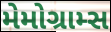
મેમોગ્રામ્સ